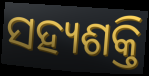
ସହ୍ୟଶକ୍ତି